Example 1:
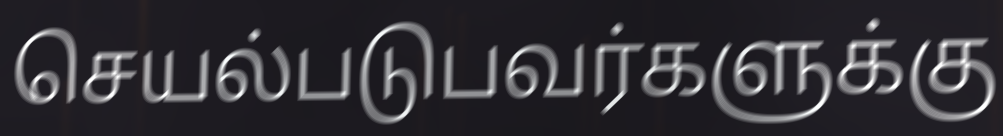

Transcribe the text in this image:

செயல்படுபவர்களுக்கு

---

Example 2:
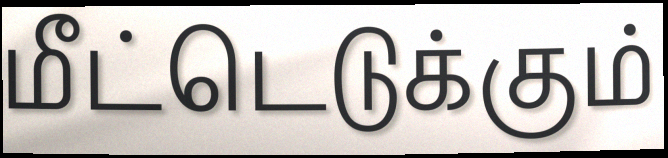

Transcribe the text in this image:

மீட்டெடுக்கும்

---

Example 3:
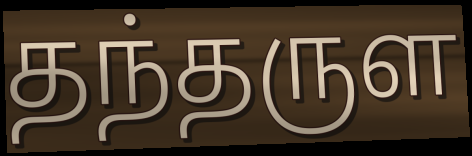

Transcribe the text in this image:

தந்தருள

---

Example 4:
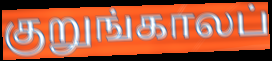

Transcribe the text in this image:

குறுங்காலப்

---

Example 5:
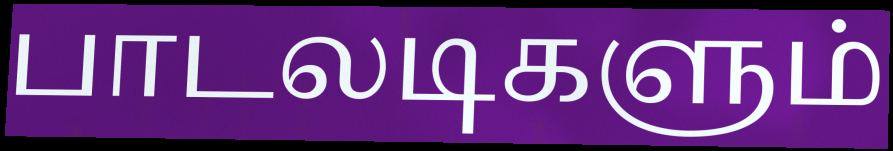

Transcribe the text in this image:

பாடலடிகளும்